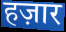
हज़ार